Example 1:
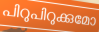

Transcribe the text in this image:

പിറുപിറുക്കുമോ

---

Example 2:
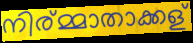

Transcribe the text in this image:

നിര്മ്മാതാക്കള്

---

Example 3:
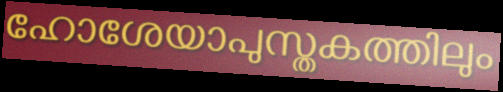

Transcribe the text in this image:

ഹോശേയാപുസ്തകത്തിലും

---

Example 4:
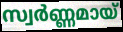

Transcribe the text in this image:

സ്വർണ്ണമായ്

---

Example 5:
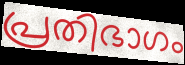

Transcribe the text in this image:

പ്രതിഭാഗം